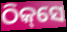
ଠିକ୍‌ସେ